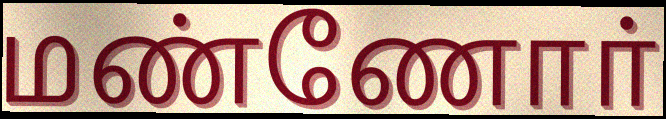
மண்ணோர்